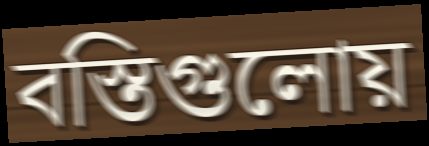
বস্তিগুলোয়